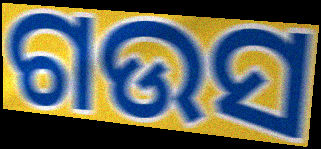
ଗଉସ